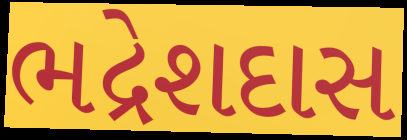
ભદ્રેશદાસ